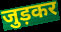
जुड़कर